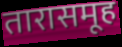
तारासमूह